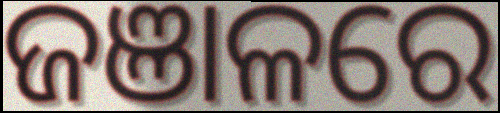
ଜଞାଳରେ